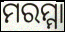
ମରମ୍ମା